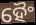
ହୈଂ